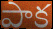
పాక